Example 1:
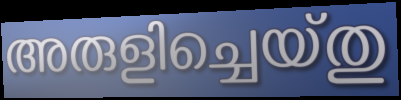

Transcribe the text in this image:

അരുളിച്ചെയ്തു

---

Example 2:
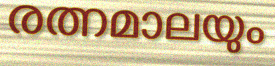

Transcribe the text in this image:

രത്നമാലയും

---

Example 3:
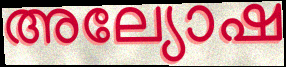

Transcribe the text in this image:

അല്യോഷ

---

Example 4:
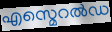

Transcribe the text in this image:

എസ്മെറൽഡ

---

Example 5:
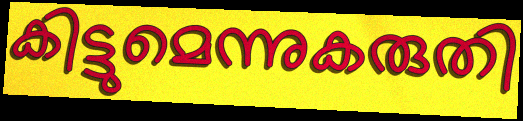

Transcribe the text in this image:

കിട്ടുമെന്നുകരുതി